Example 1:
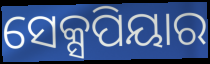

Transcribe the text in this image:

ସେକ୍ସପିୟାର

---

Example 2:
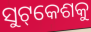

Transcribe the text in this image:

ସୁଟ୍‌କେଶକୁ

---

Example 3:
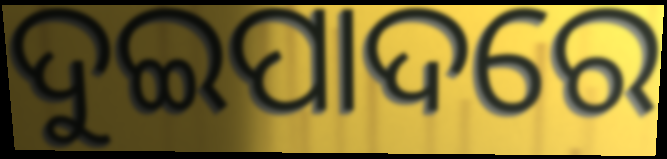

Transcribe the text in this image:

ଦୁଇପାଦରେ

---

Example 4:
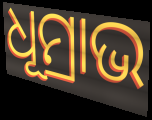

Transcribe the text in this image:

ଧୂମ୍ରାଭ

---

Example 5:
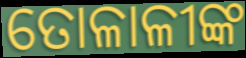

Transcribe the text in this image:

ତୋଳାଳୀଙ୍କ